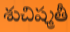
శుచిష్మతీ